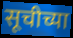
सूचीच्या